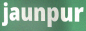
jaunpur